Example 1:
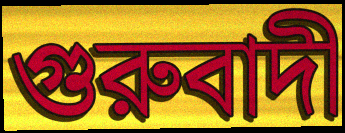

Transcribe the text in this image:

গুরুবাদী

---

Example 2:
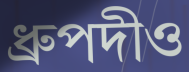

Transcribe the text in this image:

ধ্রুপদীও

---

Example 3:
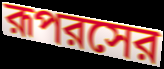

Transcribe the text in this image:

রূপরসের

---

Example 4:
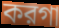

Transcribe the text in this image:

করগা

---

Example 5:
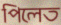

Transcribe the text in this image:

পিলেত